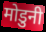
मोडुनी